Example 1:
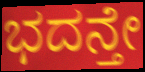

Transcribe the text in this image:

ಭದನ್ತೇ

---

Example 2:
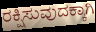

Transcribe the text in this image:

ರಕ್ಷಿಸುವುದಕ್ಕಾಗಿ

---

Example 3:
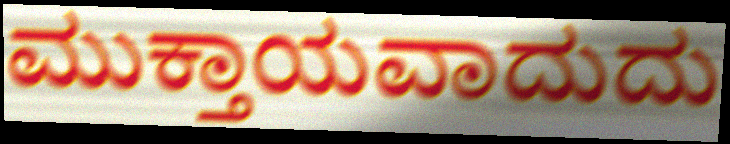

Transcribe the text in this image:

ಮುಕ್ತಾಯವಾದುದು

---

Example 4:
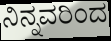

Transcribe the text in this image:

ನಿನ್ನವರಿಂದ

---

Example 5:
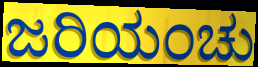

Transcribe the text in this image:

ಜರಿಯಂಚು